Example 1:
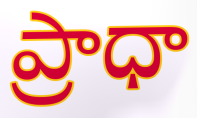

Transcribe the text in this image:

ప్రాధా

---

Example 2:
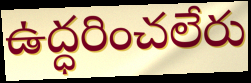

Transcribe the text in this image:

ఉద్ధరించలేరు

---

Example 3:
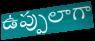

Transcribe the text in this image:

ఉప్పులాగా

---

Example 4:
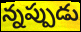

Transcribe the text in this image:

న్నప్పుడు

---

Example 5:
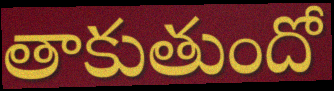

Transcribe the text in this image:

తాకుతుందో